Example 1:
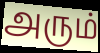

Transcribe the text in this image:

அரும்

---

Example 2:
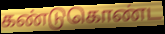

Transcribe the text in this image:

கண்டுகொண்ட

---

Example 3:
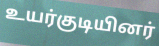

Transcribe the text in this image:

உயர்குடியினர்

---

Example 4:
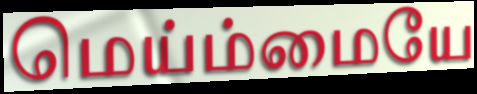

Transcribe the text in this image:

மெய்ம்மையே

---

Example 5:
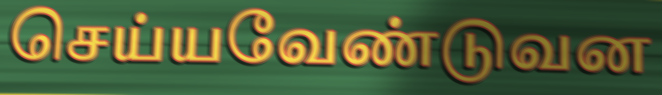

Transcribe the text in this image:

செய்யவேண்டுவன